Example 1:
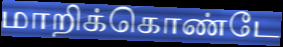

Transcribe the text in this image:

மாறிக்கொண்டே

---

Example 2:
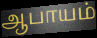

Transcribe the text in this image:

ஆபாயம்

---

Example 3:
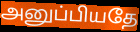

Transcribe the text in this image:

அனுப்பியதே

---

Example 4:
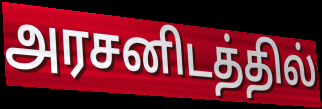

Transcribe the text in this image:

அரசனிடத்தில்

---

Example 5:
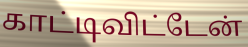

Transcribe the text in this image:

காட்டிவிட்டேன்